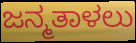
ಜನ್ಮತಾಳಲು